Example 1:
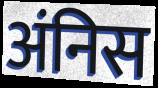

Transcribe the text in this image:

अंनिस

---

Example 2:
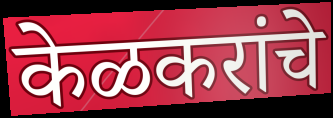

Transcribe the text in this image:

केळकरांचे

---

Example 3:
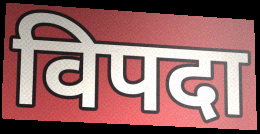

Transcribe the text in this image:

विपदा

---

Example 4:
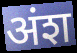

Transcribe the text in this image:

अंश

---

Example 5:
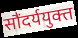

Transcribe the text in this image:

सौंदर्ययुक्त